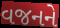
વજનને